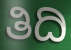
ತಿದಿ